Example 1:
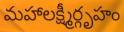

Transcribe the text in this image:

మహాలక్ష్మీర్గృహం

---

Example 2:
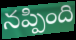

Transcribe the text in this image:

నప్పింది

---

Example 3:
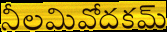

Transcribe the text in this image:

నీలమివోదకమ్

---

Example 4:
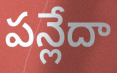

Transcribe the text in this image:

పన్లేదా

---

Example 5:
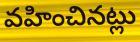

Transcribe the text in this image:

వహించినట్లు